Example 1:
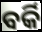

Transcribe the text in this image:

ବର୍କି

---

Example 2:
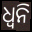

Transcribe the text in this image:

ଧ୍ବନି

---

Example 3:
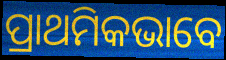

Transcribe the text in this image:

ପ୍ରାଥମିକଭାବେ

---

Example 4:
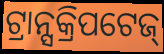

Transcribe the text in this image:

ଟ୍ରାନ୍ସକ୍ରିପଟେଜ୍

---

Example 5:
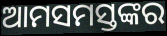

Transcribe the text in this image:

ଆମସମସ୍ତଙ୍କର